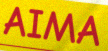
AIMA